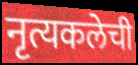
नृत्यकलेची